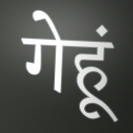
गेहूं